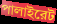
পালাইরেট